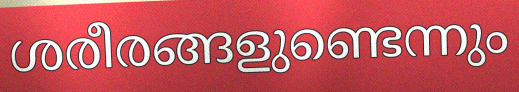
ശരീരങ്ങളുണ്ടെന്നും